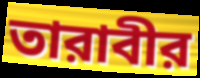
তারাবীর